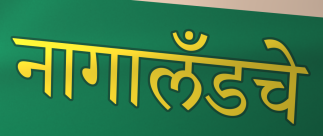
नागालँडचे